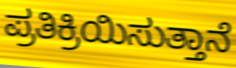
ಪ್ರತಿಕ್ರಿಯಿಸುತ್ತಾನೆ